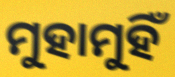
ମୁହାମୁହିଁ